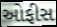
ઓફીસ